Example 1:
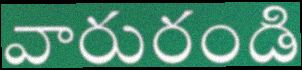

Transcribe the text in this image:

వారురండి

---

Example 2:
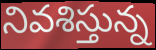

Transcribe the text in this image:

నివశిస్తున్న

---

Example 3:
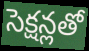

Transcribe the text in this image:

సెక్షన్లతో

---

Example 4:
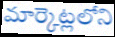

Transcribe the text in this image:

మార్కెట్లలోని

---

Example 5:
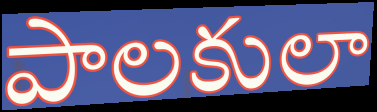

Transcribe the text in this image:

పాలకులా